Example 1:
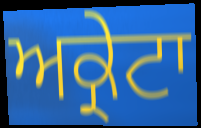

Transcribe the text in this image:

ਅਕ੍ਰੇਟਾ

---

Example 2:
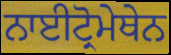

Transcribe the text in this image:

ਨਾਈਟ੍ਰੋਮੇਥੇਨ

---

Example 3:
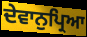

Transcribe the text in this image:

ਦੇਵਾਨੁਪ੍ਰਿਆ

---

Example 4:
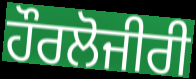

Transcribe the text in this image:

ਹੌਰਲੋਜੀਰੀ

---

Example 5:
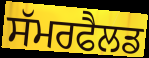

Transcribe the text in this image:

ਸੱਮਰਫੈਲਡ